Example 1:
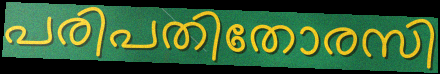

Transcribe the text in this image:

പരിപതിതോരസി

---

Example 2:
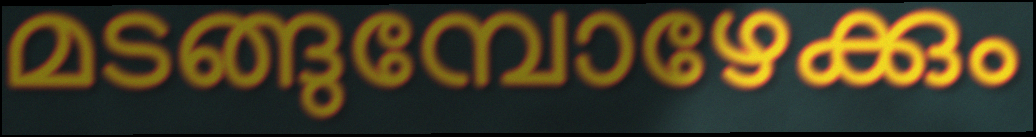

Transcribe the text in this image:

മടങ്ങുമ്പോഴേക്കും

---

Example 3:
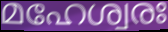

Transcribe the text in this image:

മഹേശ്വരഃ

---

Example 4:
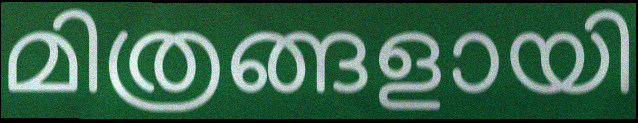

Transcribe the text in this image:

മിത്രങ്ങളായി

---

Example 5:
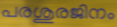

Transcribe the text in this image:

പരശുരജിനം